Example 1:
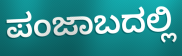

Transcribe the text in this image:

ಪಂಜಾಬದಲ್ಲಿ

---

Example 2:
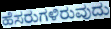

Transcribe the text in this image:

ಹೆಸರುಗಳಿರುವುದು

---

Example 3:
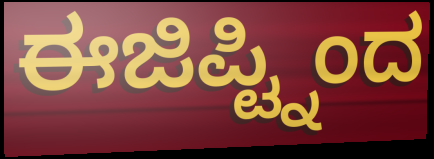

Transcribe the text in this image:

ಈಜಿಪ್ಟ್ನಿಂದ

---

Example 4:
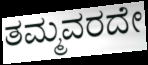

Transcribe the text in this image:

ತಮ್ಮವರದೇ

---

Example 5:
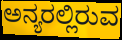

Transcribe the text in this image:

ಅನ್ಯರಲ್ಲಿರುವ